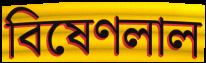
বিষেণলাল